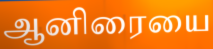
ஆனிரையை